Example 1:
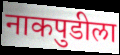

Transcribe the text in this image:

नाकपुडीला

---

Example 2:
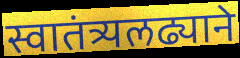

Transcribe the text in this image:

स्वातंत्र्यलढ्याने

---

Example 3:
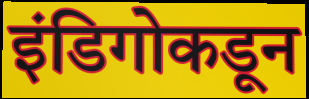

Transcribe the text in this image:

इंडिगोकडून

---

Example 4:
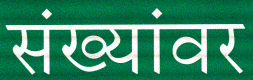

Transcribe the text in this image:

संख्यांवर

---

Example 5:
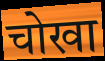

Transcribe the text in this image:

चोखा